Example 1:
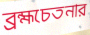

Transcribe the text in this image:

ব্রহ্মচেতনার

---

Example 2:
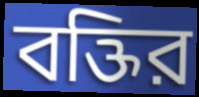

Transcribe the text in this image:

বক্তির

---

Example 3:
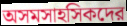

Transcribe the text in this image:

অসমসাহসিকদের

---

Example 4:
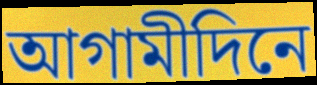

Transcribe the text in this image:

আগামীদিনে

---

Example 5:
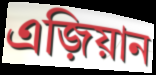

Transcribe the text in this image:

এজ়িয়ান